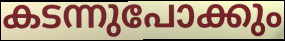
കടന്നുപോക്കും